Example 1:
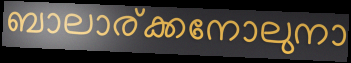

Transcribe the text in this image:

ബാലാര്ക്കനോലുനാ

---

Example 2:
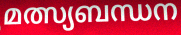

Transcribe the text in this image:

മത്സ്യബന്ധന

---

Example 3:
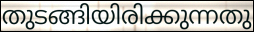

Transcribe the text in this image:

തുടങ്ങിയിരിക്കുന്നതു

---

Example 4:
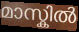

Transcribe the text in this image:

മാസ്കിൽ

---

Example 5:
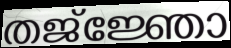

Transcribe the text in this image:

തജ്ജ്ഞോ